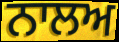
ਨਾਲਅ